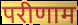
परीणाम